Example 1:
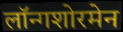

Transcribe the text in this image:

लॉन्गशोरमेन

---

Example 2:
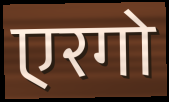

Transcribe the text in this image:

एरगो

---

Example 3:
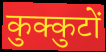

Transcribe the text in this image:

कुक्कुटों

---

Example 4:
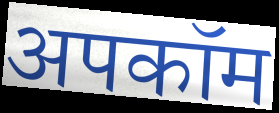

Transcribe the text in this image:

अपकॉम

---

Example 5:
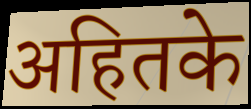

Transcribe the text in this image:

अहितके